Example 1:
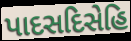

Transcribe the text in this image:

પાદસદિસેહિ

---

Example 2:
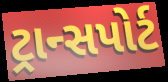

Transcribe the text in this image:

ટ્રાન્સપોર્ટ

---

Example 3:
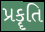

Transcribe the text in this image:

પ્રકૄતિ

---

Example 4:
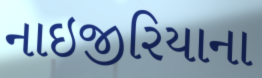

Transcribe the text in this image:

નાઇજીરિયાના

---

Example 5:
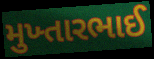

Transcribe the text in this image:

મુખ્તારભાઈ